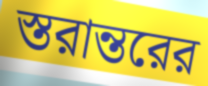
স্তরান্তরের